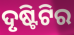
ଦୃଷ୍ଟିଟିର